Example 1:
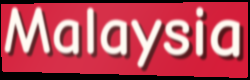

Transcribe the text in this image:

Malaysia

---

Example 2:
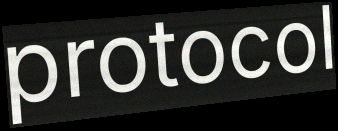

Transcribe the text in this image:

protocol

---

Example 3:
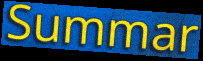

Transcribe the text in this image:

Summar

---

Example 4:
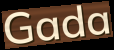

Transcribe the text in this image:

Gada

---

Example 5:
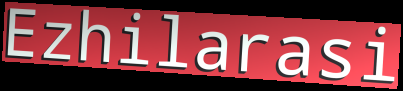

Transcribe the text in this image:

Ezhilarasi